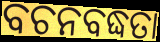
ବଚନବଦ୍ଧତା